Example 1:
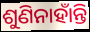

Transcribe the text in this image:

ଶୁଣିନାହାଁନ୍ତି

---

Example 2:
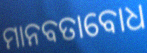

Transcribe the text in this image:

ମାନବତାବୋଧ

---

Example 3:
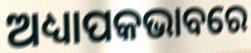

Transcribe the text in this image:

ଅଧ୍ୟାପକଭାବରେ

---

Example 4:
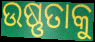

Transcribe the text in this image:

ଉଷ୍ଣତାକୁ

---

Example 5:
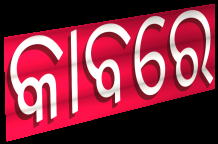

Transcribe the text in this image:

କାବରେ